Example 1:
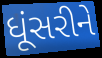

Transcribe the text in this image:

ધૂંસરીને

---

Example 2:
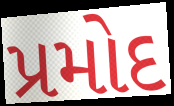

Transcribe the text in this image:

પ્રમોદ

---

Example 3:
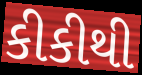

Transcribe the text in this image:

કીકીથી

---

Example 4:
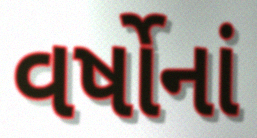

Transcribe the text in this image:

વર્ષોનાં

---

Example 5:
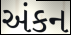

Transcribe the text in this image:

અંકન